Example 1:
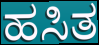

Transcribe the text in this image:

ಹಸಿತ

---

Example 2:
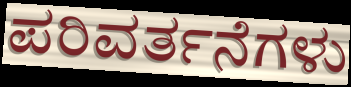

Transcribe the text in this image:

ಪರಿವರ್ತನೆಗಳು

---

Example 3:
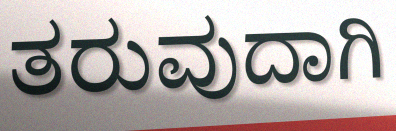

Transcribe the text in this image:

ತರುವುದಾಗಿ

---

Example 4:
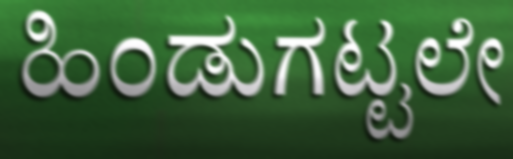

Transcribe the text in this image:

ಹಿಂಡುಗಟ್ಟಲೇ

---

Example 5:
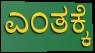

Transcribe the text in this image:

ಎಂತಕ್ಕೆ